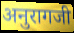
अनुरागजी